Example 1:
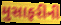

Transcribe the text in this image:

મુસાફરીની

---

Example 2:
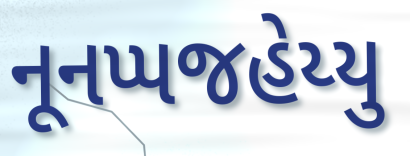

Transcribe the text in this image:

નૂનપ્પજહેય્યુ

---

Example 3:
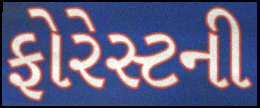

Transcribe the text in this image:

ફોરેસ્ટની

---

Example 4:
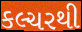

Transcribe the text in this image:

કલ્ચરથી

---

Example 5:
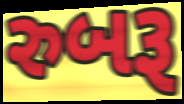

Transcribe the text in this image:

રુબરૂ